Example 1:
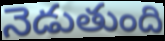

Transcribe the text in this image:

నెడుతుంది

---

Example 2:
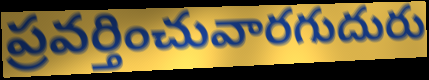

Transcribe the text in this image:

ప్రవర్తించువారగుదురు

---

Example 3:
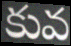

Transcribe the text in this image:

కువ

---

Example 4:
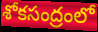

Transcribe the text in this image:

శోకసంద్రంలో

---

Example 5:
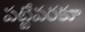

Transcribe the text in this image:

పట్టేవరకూ